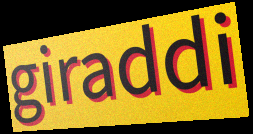
giraddi